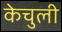
केचुली